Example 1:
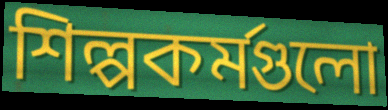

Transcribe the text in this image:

শিল্পকর্মগুলো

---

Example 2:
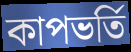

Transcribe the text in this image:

কাপভর্তি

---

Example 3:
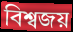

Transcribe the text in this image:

বিশ্বজয়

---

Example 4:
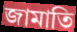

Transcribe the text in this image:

জামাতি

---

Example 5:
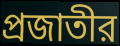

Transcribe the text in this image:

প্রজাতীর